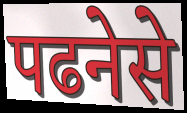
पढनेसे